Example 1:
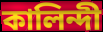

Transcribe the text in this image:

কালিন্দী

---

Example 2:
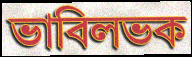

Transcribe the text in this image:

ভাবিলভক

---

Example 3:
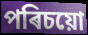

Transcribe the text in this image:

পৰিচয়ো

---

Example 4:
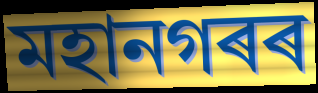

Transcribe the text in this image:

মহানগৰৰ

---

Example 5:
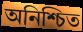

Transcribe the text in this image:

অনিশ্চিত